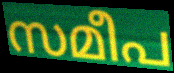
സമീപ